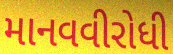
માનવવીરોધી